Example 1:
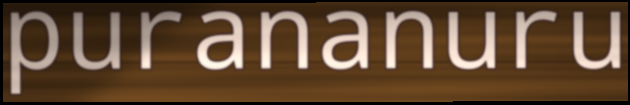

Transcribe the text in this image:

purananuru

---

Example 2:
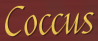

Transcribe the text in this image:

Coccus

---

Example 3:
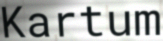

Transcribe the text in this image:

Kartum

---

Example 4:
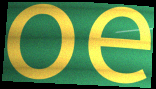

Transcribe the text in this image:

oe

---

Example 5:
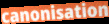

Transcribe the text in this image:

canonisation